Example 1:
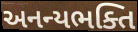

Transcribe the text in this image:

અનન્યભક્તિ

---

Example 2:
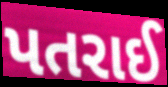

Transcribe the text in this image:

પતરાઈ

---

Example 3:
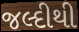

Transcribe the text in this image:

જલ્દીથી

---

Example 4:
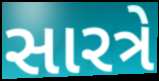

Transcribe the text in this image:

સારત્રે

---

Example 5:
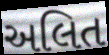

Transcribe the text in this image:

અલિત